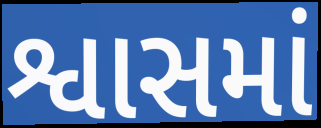
શ્વાસમાં